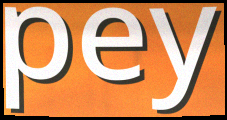
pey